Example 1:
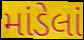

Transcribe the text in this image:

માંડેલાં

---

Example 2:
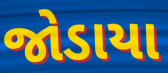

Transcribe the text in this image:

જોડાયા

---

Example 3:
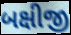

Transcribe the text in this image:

બક્ષીજી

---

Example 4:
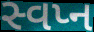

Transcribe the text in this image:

સ્વપ્ન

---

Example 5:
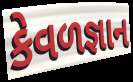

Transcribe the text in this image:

કેવળજ્ઞાન